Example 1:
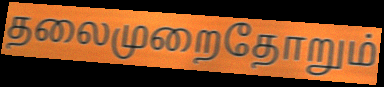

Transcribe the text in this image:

தலைமுறைதோறும்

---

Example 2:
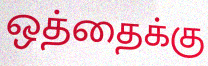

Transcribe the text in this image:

ஒத்தைக்கு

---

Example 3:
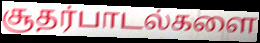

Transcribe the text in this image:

சூதர்பாடல்களை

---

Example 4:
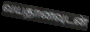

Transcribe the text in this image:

வயதானவுடன்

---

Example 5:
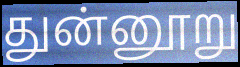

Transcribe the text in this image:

துன்னூறு